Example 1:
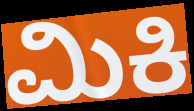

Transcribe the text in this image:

ಮಿಕಿ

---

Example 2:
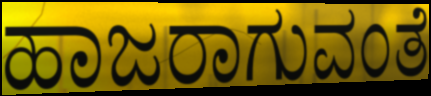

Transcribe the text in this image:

ಹಾಜರಾಗುವಂತೆ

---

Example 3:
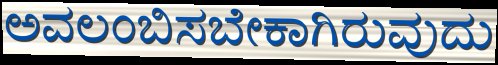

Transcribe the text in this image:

ಅವಲಂಬಿಸಬೇಕಾಗಿರುವುದು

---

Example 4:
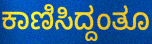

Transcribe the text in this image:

ಕಾಣಿಸಿದ್ದಂತೂ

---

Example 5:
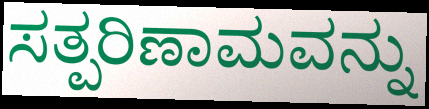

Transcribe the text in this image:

ಸತ್ಪರಿಣಾಮವನ್ನು